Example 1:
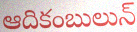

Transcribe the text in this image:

ఆదికంబులున్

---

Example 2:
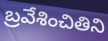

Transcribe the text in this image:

బ్రవేశించితిని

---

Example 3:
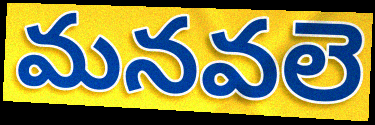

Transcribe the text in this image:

మనవలె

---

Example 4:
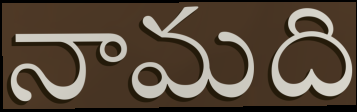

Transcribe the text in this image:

నామది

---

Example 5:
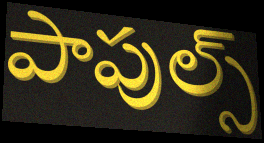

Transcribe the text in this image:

పాపుల్స్